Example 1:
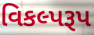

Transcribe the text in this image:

વિકલ્પરૂપ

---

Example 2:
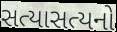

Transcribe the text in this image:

સત્યાસત્યનો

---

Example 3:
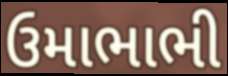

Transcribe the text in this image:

ઉમાભાભી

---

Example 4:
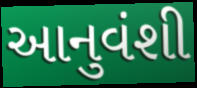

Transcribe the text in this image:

આનુવંશી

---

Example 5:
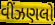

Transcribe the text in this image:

વીંઝણલો